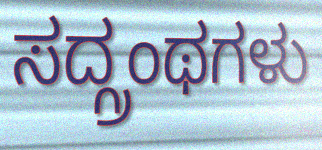
ಸದ್ಗ್ರಂಥಗಳು